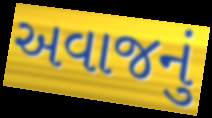
અવાજનું